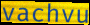
vachvu